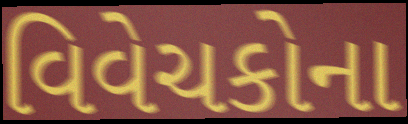
વિવેચકોના